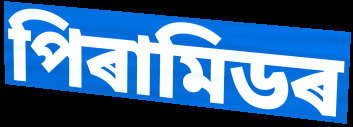
পিৰামিডৰ